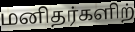
மனிதர்களிற்